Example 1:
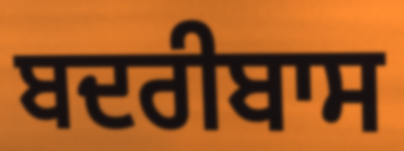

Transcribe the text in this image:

ਬਦਰੀਬਾਸ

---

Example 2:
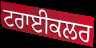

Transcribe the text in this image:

ਟਰਾਈਕਲਰ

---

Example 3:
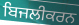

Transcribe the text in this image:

ਬਿਜਲੀਕਰਨ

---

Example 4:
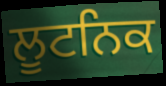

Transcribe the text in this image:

ਲੂਟਨਿਕ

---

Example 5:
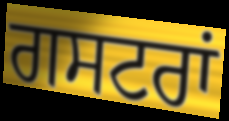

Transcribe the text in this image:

ਗਸਟਰਾਂ